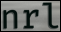
nrl